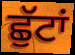
ਛੁੱਟਾਂ